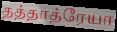
தத்தாத்ரேயா